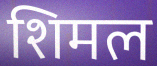
शिमल